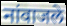
नांवाजले